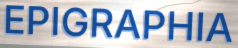
EPIGRAPHIA